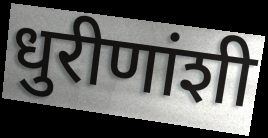
धुरीणांशी